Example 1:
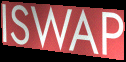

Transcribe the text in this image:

ISWAP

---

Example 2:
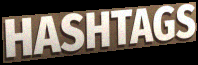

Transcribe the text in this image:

HASHTAGS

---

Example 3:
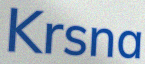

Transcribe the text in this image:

Krsna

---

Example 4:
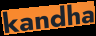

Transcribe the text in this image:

kandha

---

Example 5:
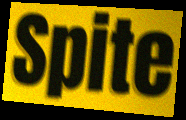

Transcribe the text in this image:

Spite